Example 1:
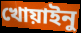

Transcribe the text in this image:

খোয়াইনু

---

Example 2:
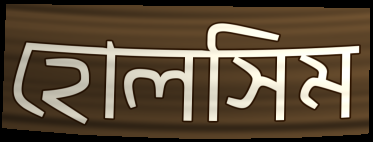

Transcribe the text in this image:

হোলসিম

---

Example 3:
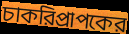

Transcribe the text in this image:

চাকরিপ্রাপকের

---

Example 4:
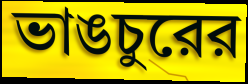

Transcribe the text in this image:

ভাঙচুরের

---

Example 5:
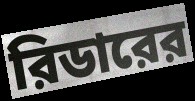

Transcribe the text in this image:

রিডারের